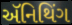
ઍનિથિંગ